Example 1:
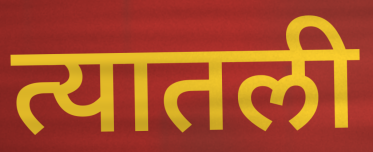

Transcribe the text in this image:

त्यातली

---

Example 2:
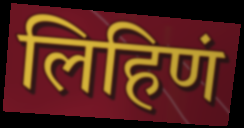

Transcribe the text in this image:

लिहिणं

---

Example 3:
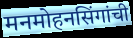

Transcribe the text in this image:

मनमोहनसिंगांची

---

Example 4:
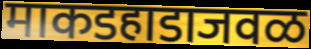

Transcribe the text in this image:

माकडहाडाजवळ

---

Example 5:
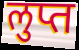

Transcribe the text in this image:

लुप्त